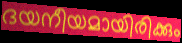
ദയനീയമായിരിക്കും